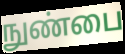
நுண்பை